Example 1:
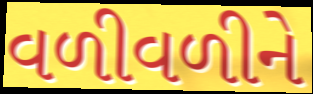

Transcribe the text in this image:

વળીવળીને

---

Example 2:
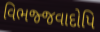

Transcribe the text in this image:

વિભજ્જવાદોપિ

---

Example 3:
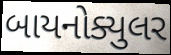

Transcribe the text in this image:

બાયનોક્યુલર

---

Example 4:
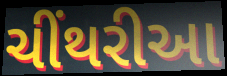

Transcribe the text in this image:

ચીંથરીઆ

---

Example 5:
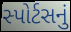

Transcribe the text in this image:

સ્પોર્ટસનું